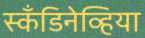
स्कँडिनेव्हिया